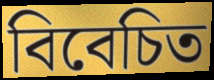
বিবেচিত